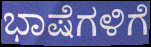
ಭಾಷೆಗಳಿಗೆ